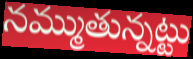
నమ్ముతున్నట్టు